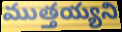
ముత్తయ్యని